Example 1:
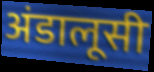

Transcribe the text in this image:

अंडालूसी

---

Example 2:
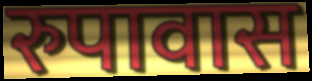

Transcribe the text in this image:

रुपावास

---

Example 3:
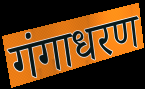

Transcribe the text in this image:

गंगाधरण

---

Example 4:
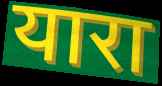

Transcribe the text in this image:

यारा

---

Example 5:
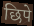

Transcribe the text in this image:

छिपे